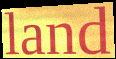
land